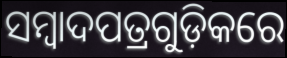
ସମ୍ୱାଦପତ୍ରଗୁଡ଼ିକରେ